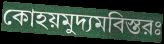
কোহয়মুদ্যমবিস্তরঃ